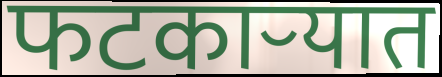
फटकाऱ्यात